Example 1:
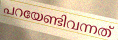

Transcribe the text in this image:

പറയേണ്ടിവന്നത്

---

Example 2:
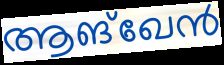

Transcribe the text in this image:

ആങ്ഖേൻ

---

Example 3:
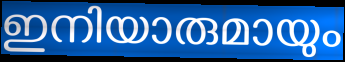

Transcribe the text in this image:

ഇനിയാരുമായും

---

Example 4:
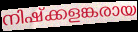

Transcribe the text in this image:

നിഷ്ക്കളങ്കരായ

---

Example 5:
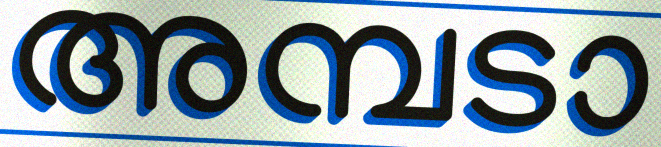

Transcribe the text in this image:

അമ്പടാ